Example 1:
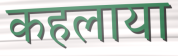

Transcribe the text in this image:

कहलाया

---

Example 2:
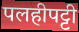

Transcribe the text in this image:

पलहीपट्टी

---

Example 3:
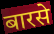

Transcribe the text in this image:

बारसे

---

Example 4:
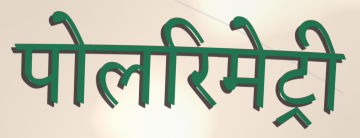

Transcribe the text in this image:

पोलरिमेट्री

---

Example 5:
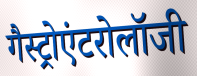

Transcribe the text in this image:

गैस्ट्रोएंटरोलॉजी